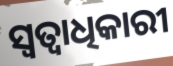
ସ୍ବତ୍ବାଧିକାରୀ